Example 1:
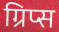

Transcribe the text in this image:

ग्रिप्स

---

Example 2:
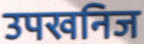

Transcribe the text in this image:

उपखनिज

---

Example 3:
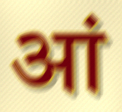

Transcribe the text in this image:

आं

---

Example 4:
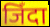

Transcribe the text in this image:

जिँदा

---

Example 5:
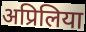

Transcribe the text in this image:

अप्रिलिया